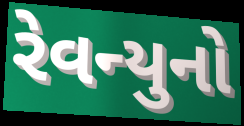
રેવન્યુનો